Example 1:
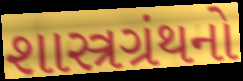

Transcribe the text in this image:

શાસ્ત્રગ્રંથનો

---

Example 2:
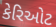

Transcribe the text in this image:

કેરિઓટ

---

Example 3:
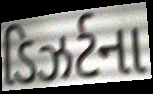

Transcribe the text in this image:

ડિઝર્ટના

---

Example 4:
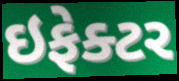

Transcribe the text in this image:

ઇફેક્ટર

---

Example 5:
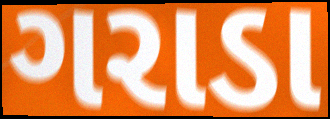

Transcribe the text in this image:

ગરાડા